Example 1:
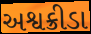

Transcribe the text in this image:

અશ્વક્રીડા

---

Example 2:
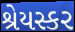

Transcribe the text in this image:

શ્રેયસ્કર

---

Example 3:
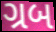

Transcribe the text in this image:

ગ્રબ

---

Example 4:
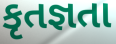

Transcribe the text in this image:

કૃતજ્ઞતા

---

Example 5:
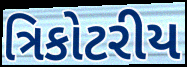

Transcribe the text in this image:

ત્રિકોટરીય